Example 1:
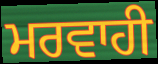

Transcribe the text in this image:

ਮਰਵਾਹੀ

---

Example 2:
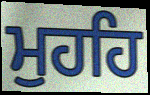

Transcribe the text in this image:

ਮੁਹਹਿ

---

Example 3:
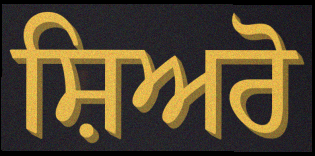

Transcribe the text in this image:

ਸ਼ਿਅਰੋ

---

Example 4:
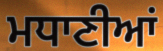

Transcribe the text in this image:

ਮਧਾਣੀਆਂ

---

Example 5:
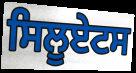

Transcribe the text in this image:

ਸਿਲੂਏਟਸ